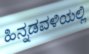
ಹಿನ್ನಡವಳಿಯಲ್ಲಿ